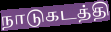
நாடுகடத்தி